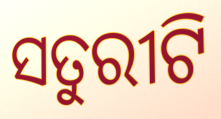
ସତୁରୀଟି